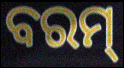
ବରମ୍